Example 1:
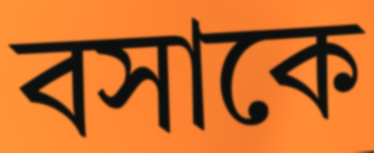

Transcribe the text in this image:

বসাকে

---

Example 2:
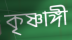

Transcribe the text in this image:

কৃষ্ণাঙ্গী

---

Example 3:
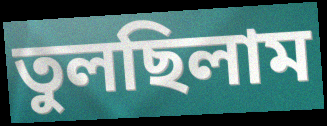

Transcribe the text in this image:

তুলছিলাম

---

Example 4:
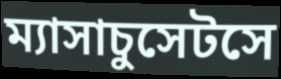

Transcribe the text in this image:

ম্যাসাচুসেটসে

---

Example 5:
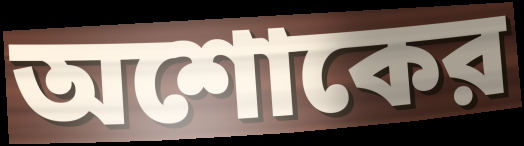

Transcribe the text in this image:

অশোকের